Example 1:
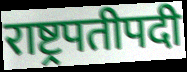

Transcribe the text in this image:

राष्ट्रपतीपदी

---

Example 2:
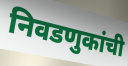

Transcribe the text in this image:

निवडणुकांची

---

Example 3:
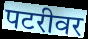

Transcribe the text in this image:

पटरीवर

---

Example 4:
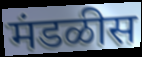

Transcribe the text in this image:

मंडळीस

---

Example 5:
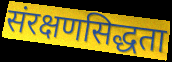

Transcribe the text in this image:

संरक्षणसिद्धता